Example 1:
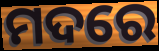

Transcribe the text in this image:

ମଦରେ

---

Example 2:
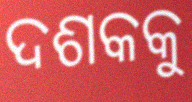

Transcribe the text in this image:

ଦଶକକୁ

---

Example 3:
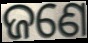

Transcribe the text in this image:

ଜଣେ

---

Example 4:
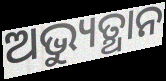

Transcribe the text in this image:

ଅଭ୍ୟୁତ୍ଥାନ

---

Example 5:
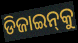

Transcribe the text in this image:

ଡିଜାଇନ୍‌କୁ